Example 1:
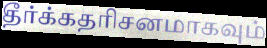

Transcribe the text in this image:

தீர்க்கதரிசனமாகவும்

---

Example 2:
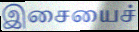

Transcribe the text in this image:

இசையைச்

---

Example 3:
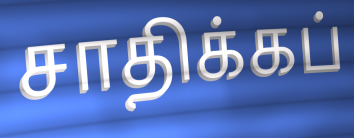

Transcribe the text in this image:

சாதிக்கப்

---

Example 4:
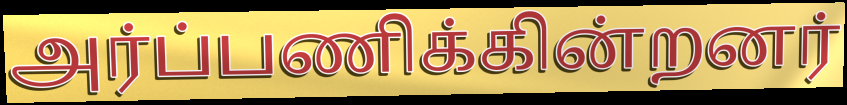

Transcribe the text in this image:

அர்ப்பணிக்கின்றனர்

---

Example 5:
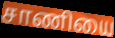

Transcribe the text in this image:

சாணியை